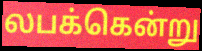
லபக்கென்று